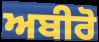
ਅਬੀਰੋ